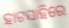
ହାଟସାହିରେ